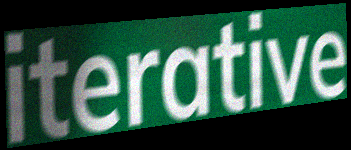
iterative